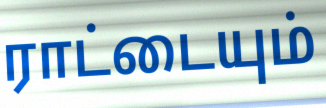
ராட்டையும்